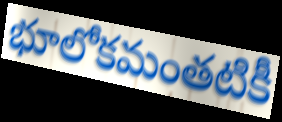
భూలోకమంతటికీ